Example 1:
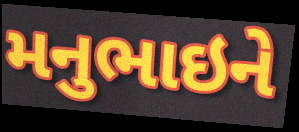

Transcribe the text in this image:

મનુભાઇને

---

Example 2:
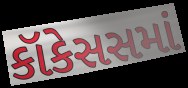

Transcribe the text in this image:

કૉકેસસમાં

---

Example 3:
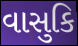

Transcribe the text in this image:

વાસુકિ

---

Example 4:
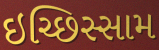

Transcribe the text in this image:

ઇચ્છિસ્સામ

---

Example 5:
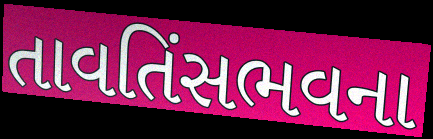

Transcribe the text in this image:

તાવતિંસભવના